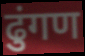
ढुंगण